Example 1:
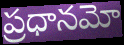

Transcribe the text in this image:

ప్రధానమో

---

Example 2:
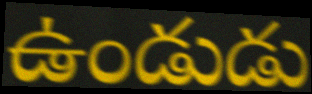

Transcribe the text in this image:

ఉండుడు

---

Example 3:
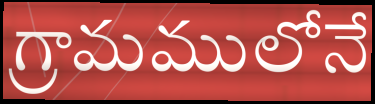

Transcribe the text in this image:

గ్రామములోనే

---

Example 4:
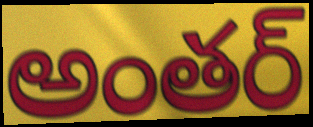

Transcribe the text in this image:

అంతర్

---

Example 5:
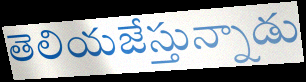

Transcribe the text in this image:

తెలియజేస్తున్నాడు